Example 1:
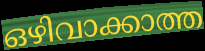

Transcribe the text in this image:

ഒഴിവാക്കാത്ത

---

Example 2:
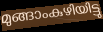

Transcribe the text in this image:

മുങ്ങാംകുഴിയിട്ടു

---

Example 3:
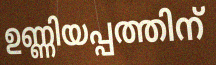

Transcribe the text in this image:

ഉണ്ണിയപ്പത്തിന്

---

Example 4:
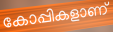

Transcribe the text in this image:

കോപ്പികളാണ്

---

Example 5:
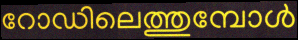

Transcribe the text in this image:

റോഡിലെത്തുമ്പോൾ